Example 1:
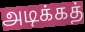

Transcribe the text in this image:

அடிக்கத்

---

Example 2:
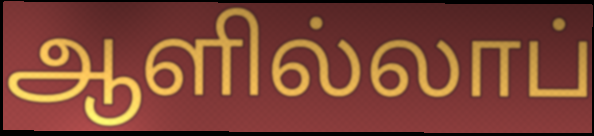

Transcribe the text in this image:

ஆளில்லாப்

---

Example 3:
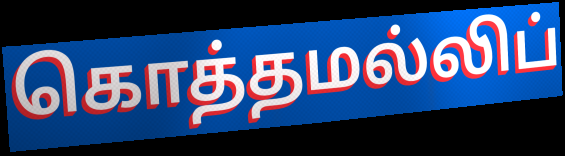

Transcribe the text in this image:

கொத்தமல்லிப்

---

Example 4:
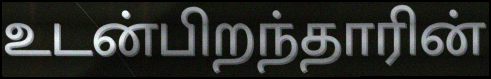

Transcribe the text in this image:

உடன்பிறந்தாரின்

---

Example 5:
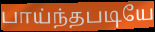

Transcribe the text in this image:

பாய்ந்தபடியே